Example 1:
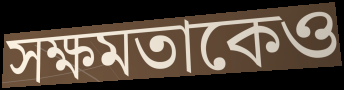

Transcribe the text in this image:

সক্ষমতাকেও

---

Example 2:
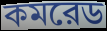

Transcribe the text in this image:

কমরেড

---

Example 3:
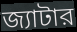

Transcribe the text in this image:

জ্যাটার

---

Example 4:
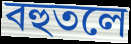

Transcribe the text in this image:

বহুতলে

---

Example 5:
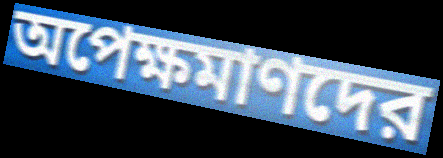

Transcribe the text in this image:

অপেক্ষমাণদের